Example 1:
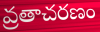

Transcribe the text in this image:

వ్రతాచరణం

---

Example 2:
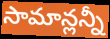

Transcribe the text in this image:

సామాన్లన్నీ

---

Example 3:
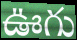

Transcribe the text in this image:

ఊగు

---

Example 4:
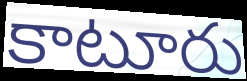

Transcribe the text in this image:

కాటూరు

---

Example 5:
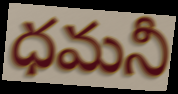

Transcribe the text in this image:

ధమనీ